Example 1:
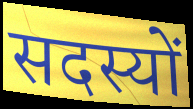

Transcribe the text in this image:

सदस्यों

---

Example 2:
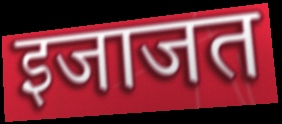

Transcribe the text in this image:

इजाजत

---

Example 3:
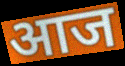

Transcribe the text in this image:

आज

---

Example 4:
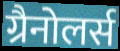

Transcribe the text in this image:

ग्रैनोलर्स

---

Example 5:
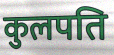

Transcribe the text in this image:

कुलपति